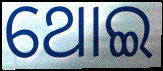
ଥୋଇ